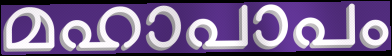
മഹാപാപം